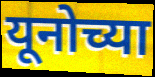
यूनोच्या